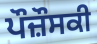
ਪੌਜ਼ੌਸਕੀ